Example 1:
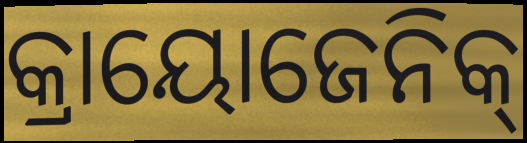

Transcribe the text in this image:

କ୍ରାୟୋଜେନିକ୍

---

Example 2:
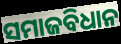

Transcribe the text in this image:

ସମାଜବିଧାନ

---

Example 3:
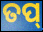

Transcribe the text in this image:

ତପ୍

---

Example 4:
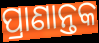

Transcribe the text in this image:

ପ୍ରାଣାନ୍ତକ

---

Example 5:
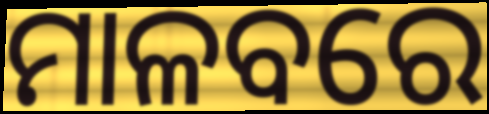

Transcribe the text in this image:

ମାଳବରେ